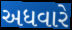
અધવારે